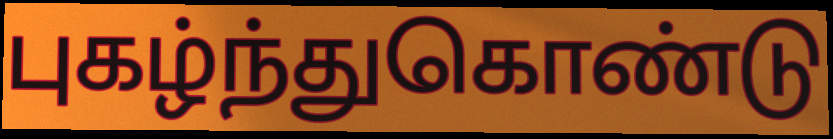
புகழ்ந்துகொண்டு